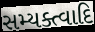
સમ્યક્ત્વાદિ